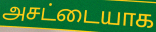
அசட்டையாக